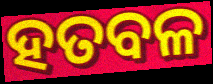
ହତବଳ